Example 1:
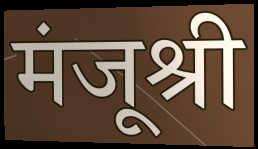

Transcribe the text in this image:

मंजूश्री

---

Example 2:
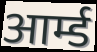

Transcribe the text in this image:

आर्म्ड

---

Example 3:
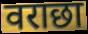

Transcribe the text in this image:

वराछा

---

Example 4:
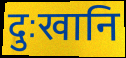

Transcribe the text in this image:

दुःखानि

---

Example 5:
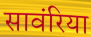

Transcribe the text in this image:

सावंरिया